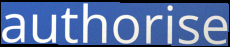
authorise